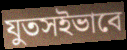
যুতসইভাবে